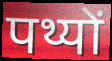
पथ्यों